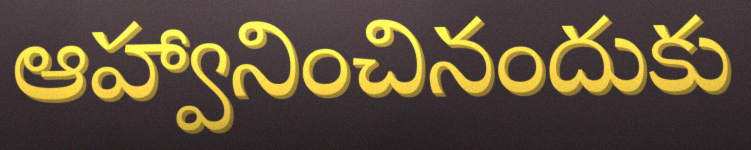
ఆహ్వానించినందుకు